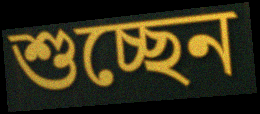
শুচ্ছেন